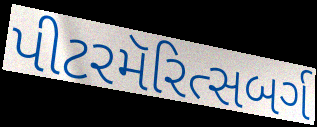
પીટરમૅરિત્સબર્ગ